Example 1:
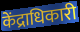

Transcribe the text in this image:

केंद्राधिकारी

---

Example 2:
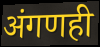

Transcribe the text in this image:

अंगणही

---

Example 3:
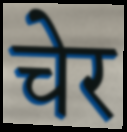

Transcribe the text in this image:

चेर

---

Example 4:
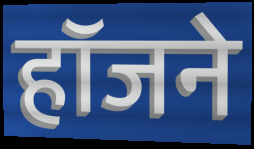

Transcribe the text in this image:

हॉजने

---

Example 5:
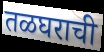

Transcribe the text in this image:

तळघराची